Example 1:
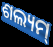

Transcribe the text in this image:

ଶଲ୍ୟମ୍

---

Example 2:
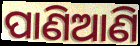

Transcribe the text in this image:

ପାଣିଆଣି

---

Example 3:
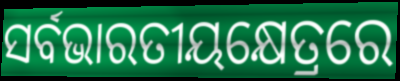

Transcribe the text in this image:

ସର୍ବଭାରତୀୟକ୍ଷେତ୍ରରେ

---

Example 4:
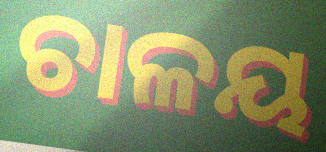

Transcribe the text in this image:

ଚାଳୟ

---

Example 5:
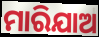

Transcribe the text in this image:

ମାରିଯାଅ